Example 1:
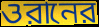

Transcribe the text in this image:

ওরানের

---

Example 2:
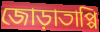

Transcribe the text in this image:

জোড়াতাপ্পি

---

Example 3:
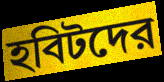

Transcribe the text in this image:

হবিটদের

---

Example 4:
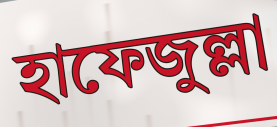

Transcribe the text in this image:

হাফেজুল্লা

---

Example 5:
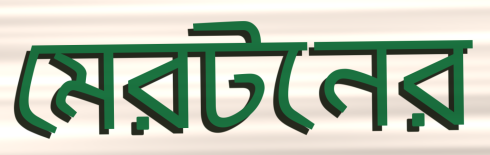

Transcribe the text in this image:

মেরটনের